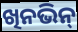
ଖିନଭିନ୍